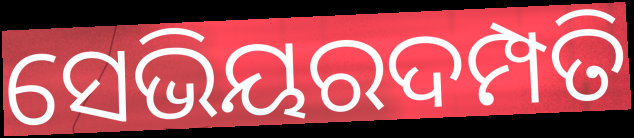
ସେଭିୟରଦମ୍ପତି